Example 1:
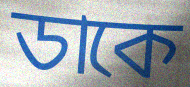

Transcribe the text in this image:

ডাকে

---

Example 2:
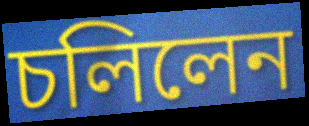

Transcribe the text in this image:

চলিলেন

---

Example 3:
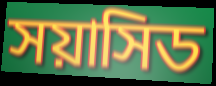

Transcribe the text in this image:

সয়াসিড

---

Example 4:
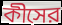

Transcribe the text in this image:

কীসের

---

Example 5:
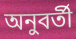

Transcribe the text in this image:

অনুবর্তী